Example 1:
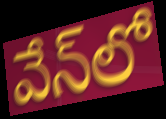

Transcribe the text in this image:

వేన్‌లో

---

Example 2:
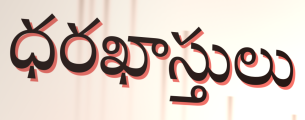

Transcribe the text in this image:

ధరఖాస్తులు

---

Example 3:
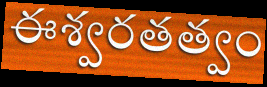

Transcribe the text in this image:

ఈశ్వరతత్వం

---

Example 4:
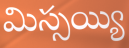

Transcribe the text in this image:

మిస్సయ్యి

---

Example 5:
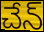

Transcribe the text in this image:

చేన్